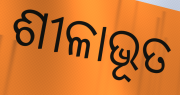
ଶୀଳାଭୂତ